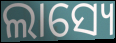
ଲାସ୍ୟେ